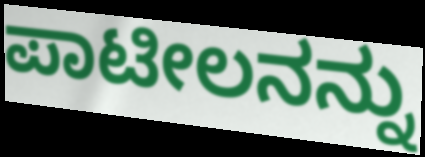
ಪಾಟೀಲನನ್ನು